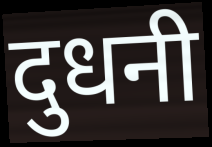
दुधनी